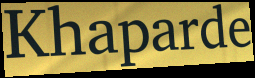
Khaparde